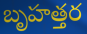
బృహత్తర